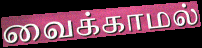
வைக்காமல்